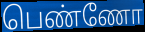
பெண்ணோ